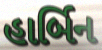
હાર્બિન